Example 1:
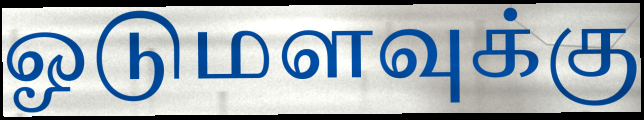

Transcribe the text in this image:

ஓடுமளவுக்கு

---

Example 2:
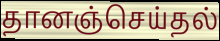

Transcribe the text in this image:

தானஞ்செய்தல்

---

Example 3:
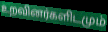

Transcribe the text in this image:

உறவினர்களிடமும்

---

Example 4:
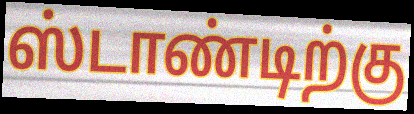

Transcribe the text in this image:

ஸ்டாண்டிற்கு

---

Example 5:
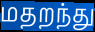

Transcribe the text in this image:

மதறந்து